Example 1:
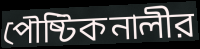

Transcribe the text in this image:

পৌষ্টিকনালীর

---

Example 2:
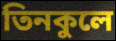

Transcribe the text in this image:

তিনকুলে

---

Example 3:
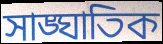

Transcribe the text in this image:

সাঙ্ঘাতিক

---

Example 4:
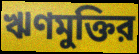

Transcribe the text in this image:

ঋণমুক্তির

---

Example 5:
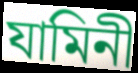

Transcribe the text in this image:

যামিনী